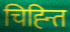
चिह्न्ति